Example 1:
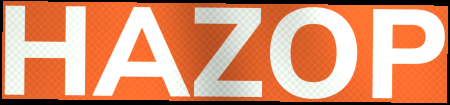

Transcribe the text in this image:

HAZOP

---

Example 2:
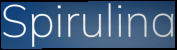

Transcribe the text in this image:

Spirulina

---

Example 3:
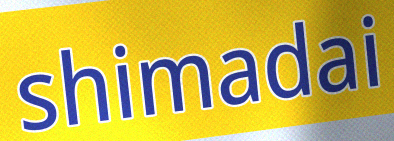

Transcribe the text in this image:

shimadai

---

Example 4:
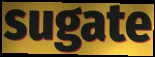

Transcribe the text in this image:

sugate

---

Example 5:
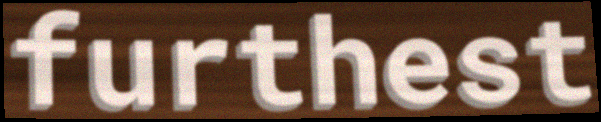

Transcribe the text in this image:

furthest